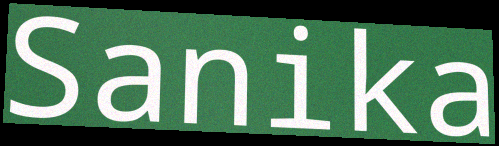
Sanika